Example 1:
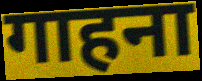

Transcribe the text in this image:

गाहना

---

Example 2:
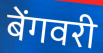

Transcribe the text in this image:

बेंगवरी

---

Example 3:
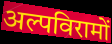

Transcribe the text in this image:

अल्पविरामों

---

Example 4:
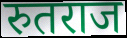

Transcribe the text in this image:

रुतराज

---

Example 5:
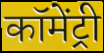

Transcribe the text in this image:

कॉमेंट्री